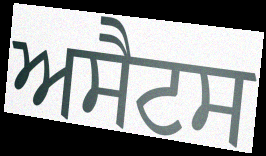
ਅਸੈਟਸ